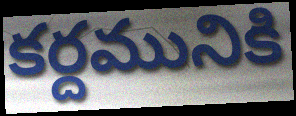
కర్దమునికి